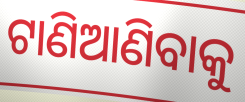
ଟାଣିଆଣିବାକୁ